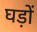
घड़ों